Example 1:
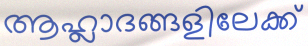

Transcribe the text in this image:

ആഹ്ലാദങ്ങളിലേക്ക്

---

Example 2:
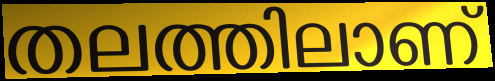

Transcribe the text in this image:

തലത്തിലാണ്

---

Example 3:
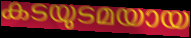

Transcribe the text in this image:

കടയുടമയായ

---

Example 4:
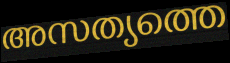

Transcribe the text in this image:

അസത്യത്തെ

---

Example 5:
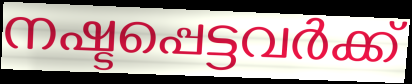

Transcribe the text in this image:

നഷ്ടപ്പെട്ടവർക്ക്